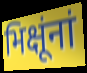
भिक्षूंनां